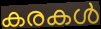
കരകൾ